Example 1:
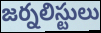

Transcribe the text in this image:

జర్నలిస్టులు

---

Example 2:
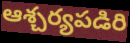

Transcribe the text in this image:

ఆశ్చర్యపడిరి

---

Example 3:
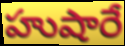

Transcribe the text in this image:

హుషారే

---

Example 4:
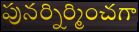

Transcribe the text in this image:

పునర్నిర్మించగా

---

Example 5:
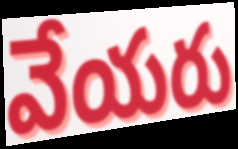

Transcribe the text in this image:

వేయరు